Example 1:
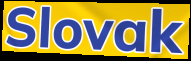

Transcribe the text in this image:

Slovak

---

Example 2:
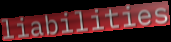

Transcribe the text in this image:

liabilities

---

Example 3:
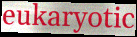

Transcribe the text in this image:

eukaryotic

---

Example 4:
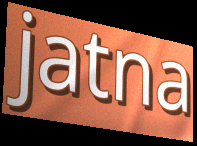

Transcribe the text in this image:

jatna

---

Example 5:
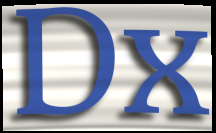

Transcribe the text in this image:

Dx